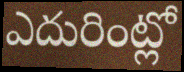
ఎదురింట్లో